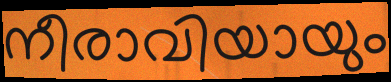
നീരാവിയായും